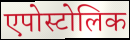
एपोस्टोलिक